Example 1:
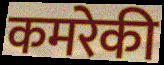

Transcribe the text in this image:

कमरेकी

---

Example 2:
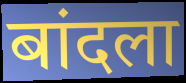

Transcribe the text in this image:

बांदला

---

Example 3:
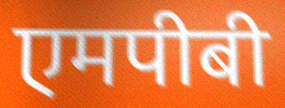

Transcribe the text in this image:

एमपीबी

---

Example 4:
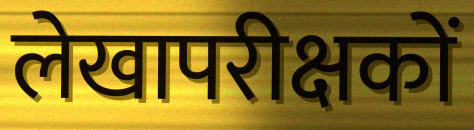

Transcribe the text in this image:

लेखापरीक्षकों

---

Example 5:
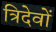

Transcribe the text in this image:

त्रिदेवों